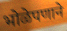
भोळेपणाने